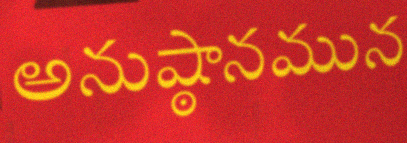
అనుష్ఠానమున